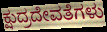
ಕ್ಷುದ್ರದೇವತೆಗಳು